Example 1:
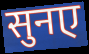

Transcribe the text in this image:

सुनए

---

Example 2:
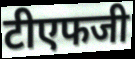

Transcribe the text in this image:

टीएफजी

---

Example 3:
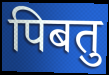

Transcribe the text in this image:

पिबतु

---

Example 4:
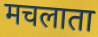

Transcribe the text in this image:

मचलाता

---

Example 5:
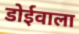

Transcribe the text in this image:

डोईवाला